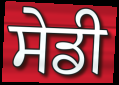
ਸੇਡੀ